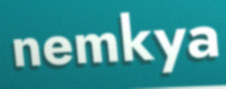
nemkya